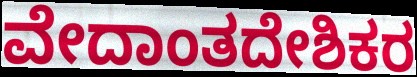
ವೇದಾಂತದೇಶಿಕರ